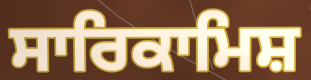
ਸਾਰਿਕਾਮਿਸ਼